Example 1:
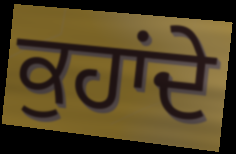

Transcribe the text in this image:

ਕੁਹਾਂਦੇ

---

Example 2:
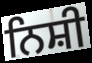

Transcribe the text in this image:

ਨਿਸ਼ੀ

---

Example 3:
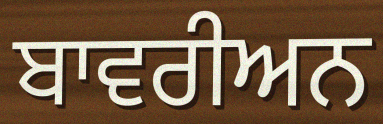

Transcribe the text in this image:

ਬਾਵਰੀਅਨ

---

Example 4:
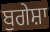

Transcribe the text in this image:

ਬੁਗੇਸ਼ਾ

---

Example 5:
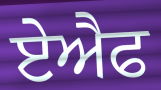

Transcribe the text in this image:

ਏਐਫ